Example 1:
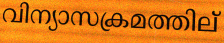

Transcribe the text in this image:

വിന്യാസക്രമത്തില്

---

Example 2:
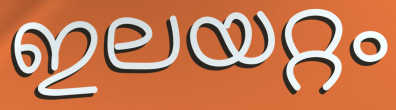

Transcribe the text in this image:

ഇലയറ്റം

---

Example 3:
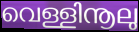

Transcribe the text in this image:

വെള്ളിനൂലു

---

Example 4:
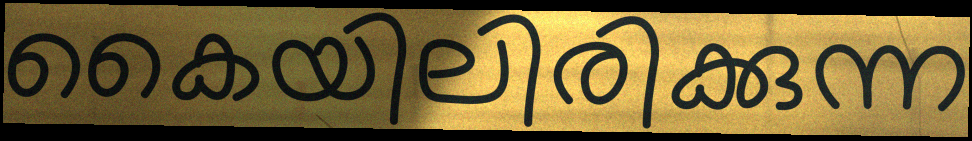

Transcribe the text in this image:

കൈയിലിരിക്കുന്ന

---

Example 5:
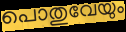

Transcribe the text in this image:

പൊതുവേയും